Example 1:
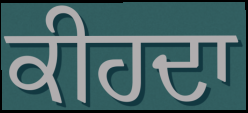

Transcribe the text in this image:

ਕੀਹਦਾ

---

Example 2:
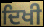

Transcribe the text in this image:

ਦਿਖੀ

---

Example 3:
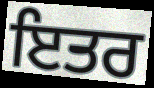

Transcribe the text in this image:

ਇਤਰ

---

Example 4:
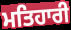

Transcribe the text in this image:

ਮਤਿਹਾਰੀ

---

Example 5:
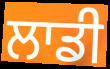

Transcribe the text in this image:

ਲਾਡੀ